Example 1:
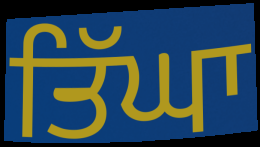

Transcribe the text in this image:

ਤਿੱਘਾ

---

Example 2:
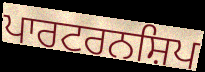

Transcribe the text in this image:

ਪਾਰਟਰਨਸ਼ਿਪ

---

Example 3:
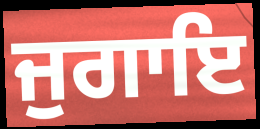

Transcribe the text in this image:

ਜੁਗਾਇ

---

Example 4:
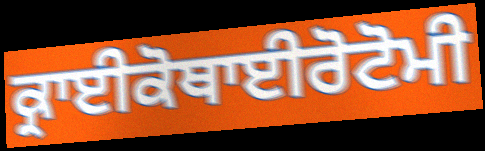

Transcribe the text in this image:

ਕ੍ਰਾਈਕੋਥਾਈਰੋਟੋਮੀ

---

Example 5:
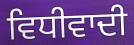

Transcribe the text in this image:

ਵਿਧੀਵਾਦੀ